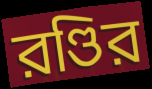
রণ্ডির